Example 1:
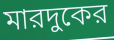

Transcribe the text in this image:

মারদুকের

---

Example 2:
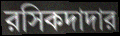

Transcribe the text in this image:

রসিকদাদার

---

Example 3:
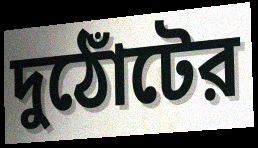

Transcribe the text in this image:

দুঠোঁটের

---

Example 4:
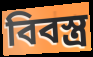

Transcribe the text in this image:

বিবস্ত্র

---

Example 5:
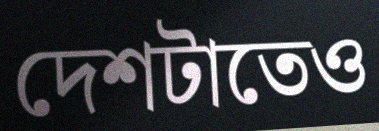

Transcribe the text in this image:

দেশটাতেও